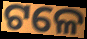
ଟଳେ